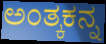
ಅಂತ್ಕಕನ್ನ